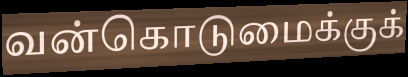
வன்கொடுமைக்குக்